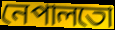
নেপালতো